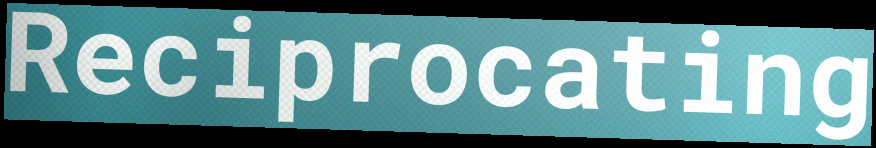
Reciprocating